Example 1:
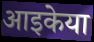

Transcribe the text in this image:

आइकेया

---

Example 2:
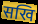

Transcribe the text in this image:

सखि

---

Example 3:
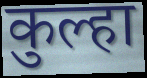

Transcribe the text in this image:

कुल्हा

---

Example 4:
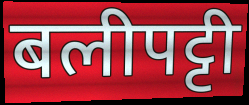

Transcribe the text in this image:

बलीपट्टी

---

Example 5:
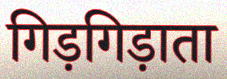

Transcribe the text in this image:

गिड़गिड़ाता